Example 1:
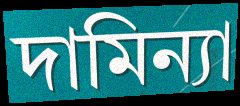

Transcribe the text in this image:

দামিন্যা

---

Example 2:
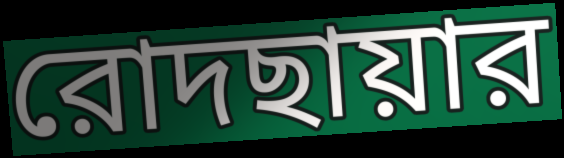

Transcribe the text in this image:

রোদছায়ার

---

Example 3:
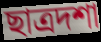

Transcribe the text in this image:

ছাত্রদশা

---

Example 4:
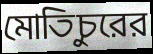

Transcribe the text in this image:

মোতিচুরের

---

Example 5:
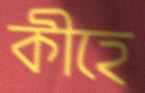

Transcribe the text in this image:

কীহে